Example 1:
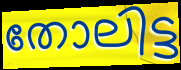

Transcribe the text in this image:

തോലിട്ട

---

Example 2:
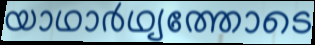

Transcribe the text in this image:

യാഥാർഥ്യത്തോടെ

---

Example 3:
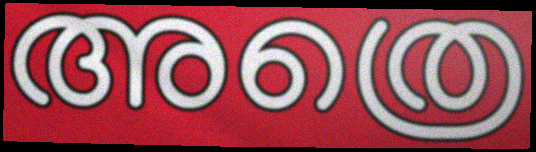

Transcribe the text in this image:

അത്രെ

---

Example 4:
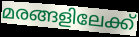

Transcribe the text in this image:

മരങ്ങളിലേക്ക്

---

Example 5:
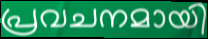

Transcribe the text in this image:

പ്രവചനമായി